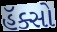
હૅક્સો